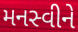
મનસ્વીને